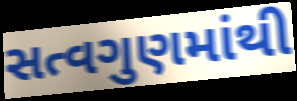
સત્વગુણમાંથી